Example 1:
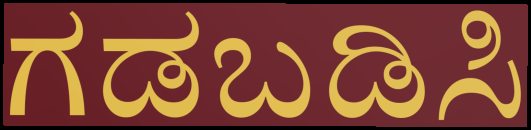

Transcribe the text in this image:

ಗಡಬಡಿಸಿ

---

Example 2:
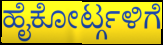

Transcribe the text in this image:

ಹೈಕೋರ್ಟ್ಗಳಿಗೆ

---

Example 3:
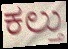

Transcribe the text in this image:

ಕಲ್ತು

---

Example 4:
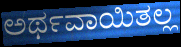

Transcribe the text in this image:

ಅರ್ಥವಾಯಿತಲ್ಲ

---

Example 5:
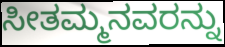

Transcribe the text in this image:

ಸೀತಮ್ಮನವರನ್ನು